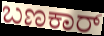
ಬಣಕಾರ್